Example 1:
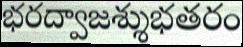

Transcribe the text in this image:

భరద్వాజశ్శుభతరం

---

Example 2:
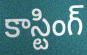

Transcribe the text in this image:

కాస్టింగ్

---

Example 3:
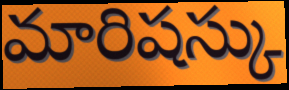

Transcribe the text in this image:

మారిషస్కు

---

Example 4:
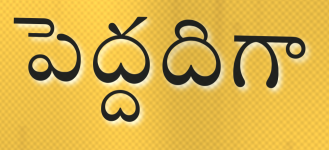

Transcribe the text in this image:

పెద్దదిగా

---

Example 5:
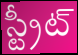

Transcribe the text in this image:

స్ట్రీట్